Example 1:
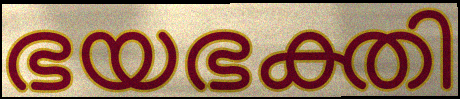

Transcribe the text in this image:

ഭയഭക്തി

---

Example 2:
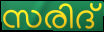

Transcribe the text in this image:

സരിദ്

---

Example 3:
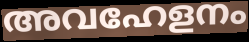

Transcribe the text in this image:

അവഹേളനം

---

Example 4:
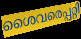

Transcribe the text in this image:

ശൈവരെപ്പറ്റി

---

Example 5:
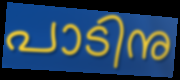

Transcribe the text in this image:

പാടിനു